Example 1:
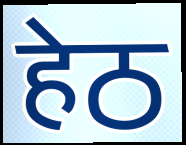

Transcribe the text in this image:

हेठ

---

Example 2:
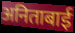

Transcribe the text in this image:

अनिताबाई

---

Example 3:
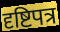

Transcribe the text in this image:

दृष्टिपत्र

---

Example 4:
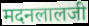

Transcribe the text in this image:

मदनलालजी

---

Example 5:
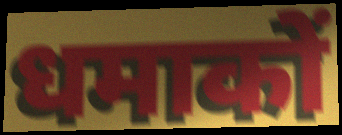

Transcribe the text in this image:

धमाकों